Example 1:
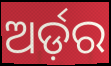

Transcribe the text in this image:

ଅର୍ଡ଼ର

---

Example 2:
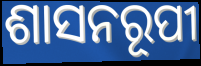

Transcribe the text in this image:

ଶାସନରୂପୀ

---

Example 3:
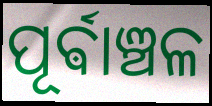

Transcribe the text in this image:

ପୂର୍ଵାଞ୍ଚଳ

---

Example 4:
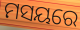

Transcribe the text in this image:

ମସୟରେ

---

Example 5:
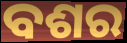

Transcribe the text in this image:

ବଶର